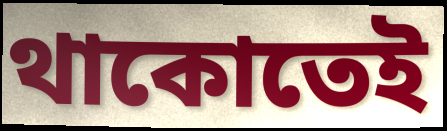
থাকোতেই